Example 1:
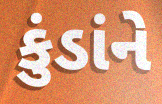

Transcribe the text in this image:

કુંડાંને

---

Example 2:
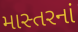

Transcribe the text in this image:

માસ્તરનાં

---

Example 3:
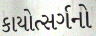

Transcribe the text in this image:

કાયોત્સર્ગનો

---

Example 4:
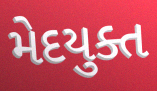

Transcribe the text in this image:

મેદયુક્ત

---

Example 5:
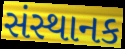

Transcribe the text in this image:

સંસ્થાનક